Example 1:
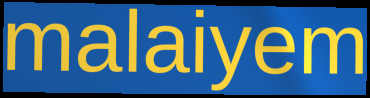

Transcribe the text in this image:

malaiyem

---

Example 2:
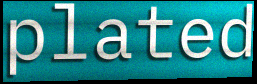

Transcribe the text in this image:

plated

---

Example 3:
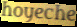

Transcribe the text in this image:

hoyeche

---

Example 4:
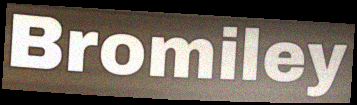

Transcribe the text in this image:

Bromiley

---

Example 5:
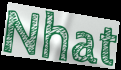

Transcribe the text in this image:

Nhat